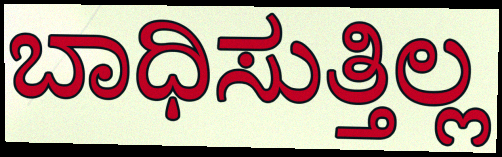
ಬಾಧಿಸುತ್ತಿಲ್ಲ